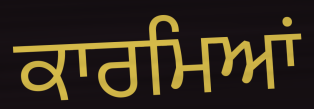
ਕਾਰਮਿਆਂ